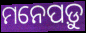
ମନେପଡ଼ୁ